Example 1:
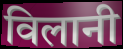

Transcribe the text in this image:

विलानी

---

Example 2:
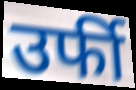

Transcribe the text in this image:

उर्फी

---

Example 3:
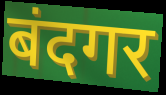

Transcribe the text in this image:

बंदगर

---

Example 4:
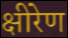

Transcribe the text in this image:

क्षीरेण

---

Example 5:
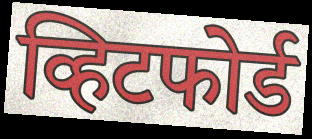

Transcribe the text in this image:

व्हिटफोर्ड